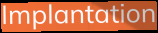
Implantation